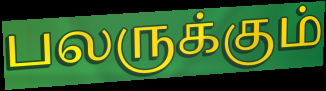
பலருக்கும்